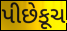
પીછેકૂચ